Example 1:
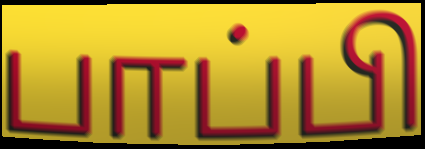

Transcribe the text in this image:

பாப்பி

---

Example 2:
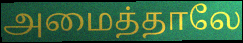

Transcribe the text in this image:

அமைத்தாலே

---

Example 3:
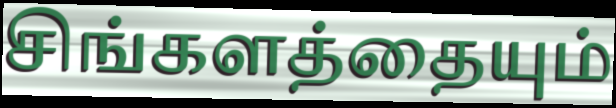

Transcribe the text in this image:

சிங்களத்தையும்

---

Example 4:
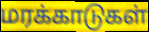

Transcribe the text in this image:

மரக்காடுகள்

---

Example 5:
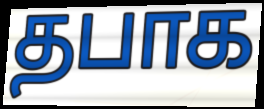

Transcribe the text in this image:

தபாக